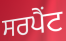
ਸਰਪੈਂਟ